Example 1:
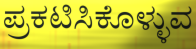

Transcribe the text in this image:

ಪ್ರಕಟಿಸಿಕೊಳ್ಳುವ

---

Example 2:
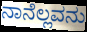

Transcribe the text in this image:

ನಾನೆಲ್ಲವನು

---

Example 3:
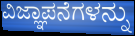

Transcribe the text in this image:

ವಿಜ್ಞಾಪನೆಗಳನ್ನು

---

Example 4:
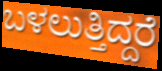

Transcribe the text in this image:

ಬಳಲುತ್ತಿದ್ದರೆ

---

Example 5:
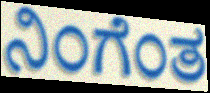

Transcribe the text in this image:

ನಿಂಗೆಂತ